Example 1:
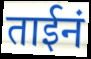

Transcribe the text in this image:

ताईनं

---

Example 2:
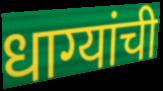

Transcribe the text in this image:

धाग्यांची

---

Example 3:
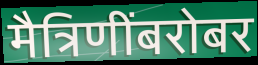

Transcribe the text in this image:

मैत्रिणींबरोबर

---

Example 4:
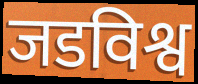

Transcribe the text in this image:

जडविश्व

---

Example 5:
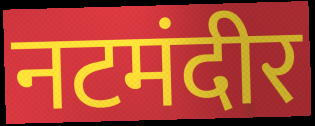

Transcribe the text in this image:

नटमंदीर